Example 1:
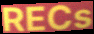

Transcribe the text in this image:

RECs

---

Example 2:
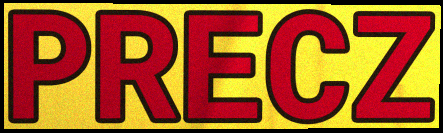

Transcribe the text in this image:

PRECZ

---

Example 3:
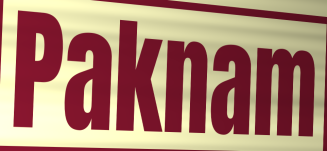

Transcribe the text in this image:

Paknam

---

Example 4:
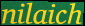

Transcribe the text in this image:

nilaich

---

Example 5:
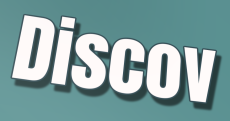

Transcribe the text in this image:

Discov